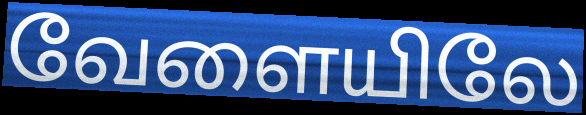
வேளையிலே